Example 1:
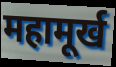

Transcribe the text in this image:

महामूर्ख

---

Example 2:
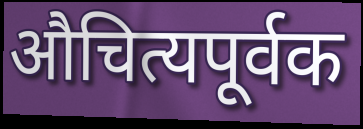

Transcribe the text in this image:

औचित्यपूर्वक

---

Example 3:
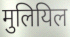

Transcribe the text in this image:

मुलियिल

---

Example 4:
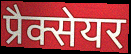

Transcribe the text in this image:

प्रैक्सेयर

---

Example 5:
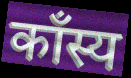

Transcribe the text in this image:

काँस्य